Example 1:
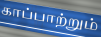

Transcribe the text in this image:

காப்பாற்றும்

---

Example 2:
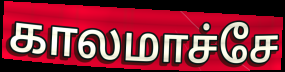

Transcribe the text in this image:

காலமாச்சே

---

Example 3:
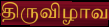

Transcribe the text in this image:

திருவிழாவ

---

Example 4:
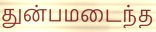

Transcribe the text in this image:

துன்பமடைந்த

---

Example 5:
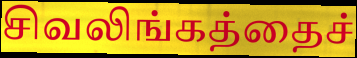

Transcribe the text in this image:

சிவலிங்கத்தைச்